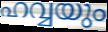
ഹവ്വയും